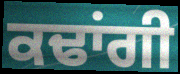
ਕਢਾਂਗੀ